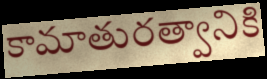
కామాతురత్వానికి